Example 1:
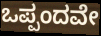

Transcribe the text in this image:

ಒಪ್ಪಂದವೇ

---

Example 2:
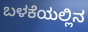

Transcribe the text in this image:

ಬಳಕೆಯಲ್ಲಿನ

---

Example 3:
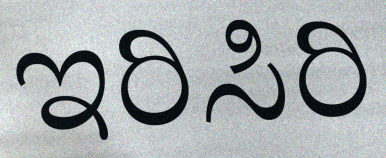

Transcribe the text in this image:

ಇರಿಸಿರಿ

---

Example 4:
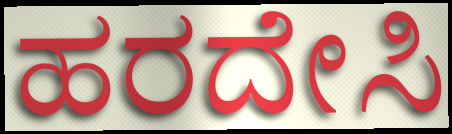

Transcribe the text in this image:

ಹರದೇಸಿ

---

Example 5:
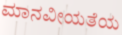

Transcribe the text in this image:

ಮಾನವೀಯತೆಯ